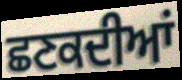
ਛਣਕਦੀਆਂ